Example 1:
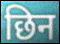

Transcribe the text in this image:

छिन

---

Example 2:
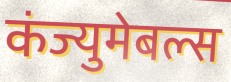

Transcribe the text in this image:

कंज्युमेबल्स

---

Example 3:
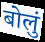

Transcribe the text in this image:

बोलुं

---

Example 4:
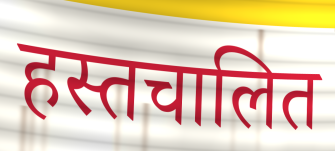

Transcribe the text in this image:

हस्तचालित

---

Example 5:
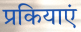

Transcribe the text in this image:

प्रकियाएं